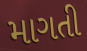
માગતી